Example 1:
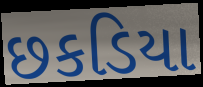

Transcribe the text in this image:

છકડિયા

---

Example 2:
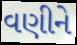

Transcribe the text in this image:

વણીને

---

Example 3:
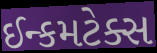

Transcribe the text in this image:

ઈન્કમટેક્સ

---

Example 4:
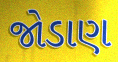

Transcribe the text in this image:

જોડાણ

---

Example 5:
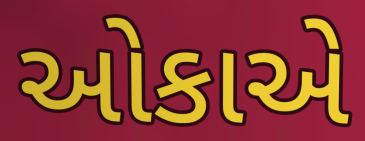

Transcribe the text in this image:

ઓકાએ